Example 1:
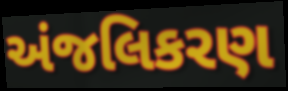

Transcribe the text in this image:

અંજલિકરણ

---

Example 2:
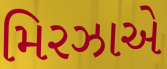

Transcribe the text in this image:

મિરઝાએ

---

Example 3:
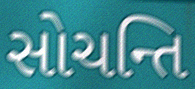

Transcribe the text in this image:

સોચન્તિ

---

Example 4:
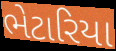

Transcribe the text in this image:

ભેટારિયા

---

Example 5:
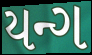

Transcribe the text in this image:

યન્ગ